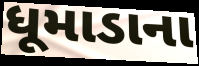
ધૂમાડાના